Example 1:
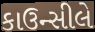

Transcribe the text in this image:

કાઉન્સીલે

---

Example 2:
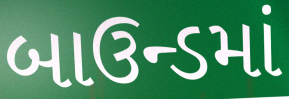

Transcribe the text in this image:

બાઉન્ડમાં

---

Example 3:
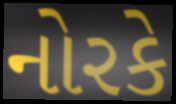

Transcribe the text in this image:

નોરકે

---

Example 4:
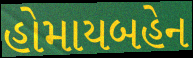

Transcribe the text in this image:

હોમાયબહેન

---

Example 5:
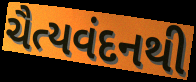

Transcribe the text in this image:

ચૈત્યવંદનથી